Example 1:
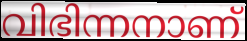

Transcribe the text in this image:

വിഭിന്നനാണ്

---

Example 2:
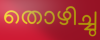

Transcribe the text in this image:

തൊഴിച്ചു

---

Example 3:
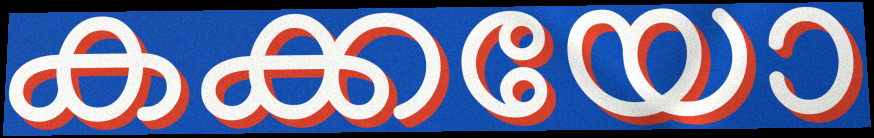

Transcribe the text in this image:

കക്കയോ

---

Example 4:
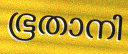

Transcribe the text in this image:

ഭൂതാനി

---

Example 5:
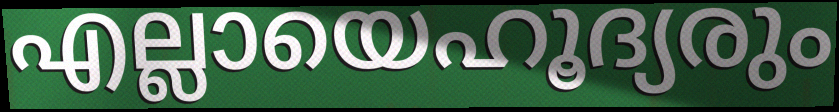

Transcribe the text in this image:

എല്ലായെഹൂദ്യരും